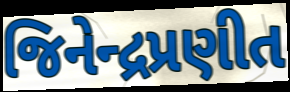
જિનેન્દ્રપ્રણીત